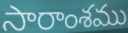
సారాంశము